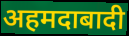
अहमदाबादी